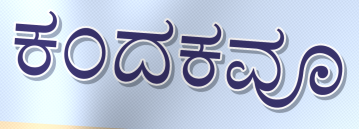
ಕಂದಕವೂ